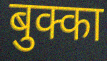
बुक्का